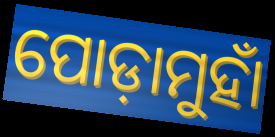
ପୋଡ଼ାମୁହାଁ